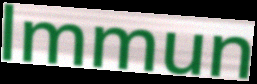
Immun